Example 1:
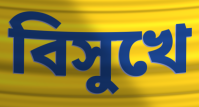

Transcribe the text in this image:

বিসুখে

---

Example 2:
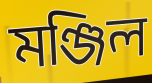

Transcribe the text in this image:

মঞ্জিল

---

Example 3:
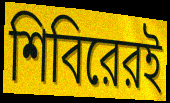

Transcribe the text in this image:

শিবিরেরই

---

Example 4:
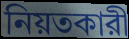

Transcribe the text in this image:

নিয়তকারী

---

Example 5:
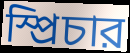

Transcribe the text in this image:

স্প্রিচার